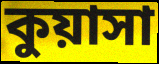
কুয়াসা